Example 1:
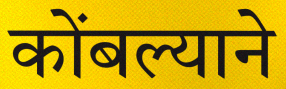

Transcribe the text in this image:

कोंबल्याने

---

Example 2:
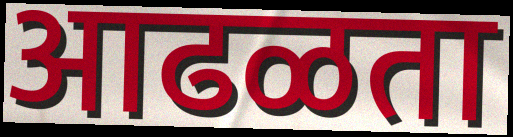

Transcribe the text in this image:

आढळता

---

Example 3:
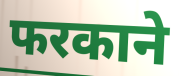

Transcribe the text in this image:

फरकाने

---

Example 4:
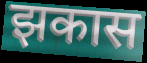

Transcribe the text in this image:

झकास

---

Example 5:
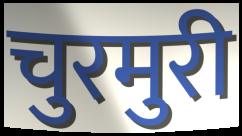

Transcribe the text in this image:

चुरमुरी